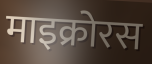
माइक्रोरस